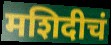
मशिदीचं